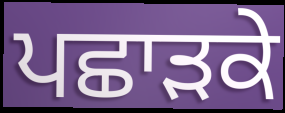
ਪਛਾੜਕੇ